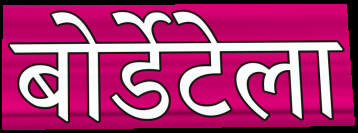
बोर्डेटेला